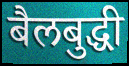
बैलबुद्धी